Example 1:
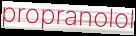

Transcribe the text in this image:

propranolol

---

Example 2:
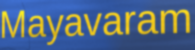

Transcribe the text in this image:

Mayavaram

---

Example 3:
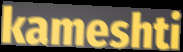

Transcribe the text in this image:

kameshti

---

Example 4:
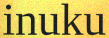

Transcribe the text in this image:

inuku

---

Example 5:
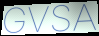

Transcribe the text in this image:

GVSA